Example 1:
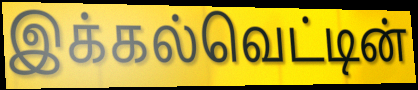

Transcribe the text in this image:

இக்கல்வெட்டின்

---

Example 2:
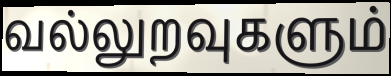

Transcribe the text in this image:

வல்லுறவுகளும்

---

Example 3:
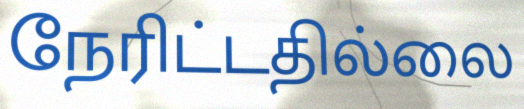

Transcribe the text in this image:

நேரிட்டதில்லை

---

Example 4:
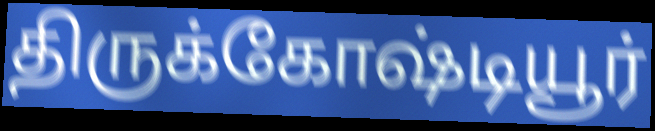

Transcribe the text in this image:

திருக்கோஷ்டியூர்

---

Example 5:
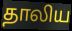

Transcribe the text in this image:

தாலிய